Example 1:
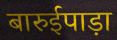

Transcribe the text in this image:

बारुईपाड़ा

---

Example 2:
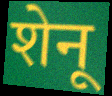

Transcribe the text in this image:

शेनू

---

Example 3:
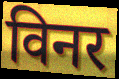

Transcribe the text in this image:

विनर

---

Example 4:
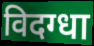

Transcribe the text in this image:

विदग्धा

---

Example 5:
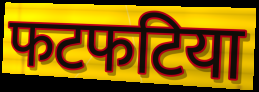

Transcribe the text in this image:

फटफटिया